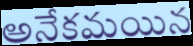
అనేకమయిన